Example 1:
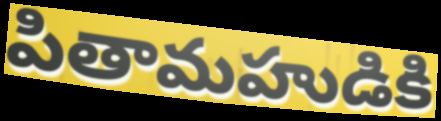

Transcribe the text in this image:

పితామహుడికి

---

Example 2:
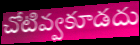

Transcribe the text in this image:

చోటివ్వకూడదు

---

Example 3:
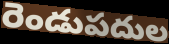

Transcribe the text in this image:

రెండుపదుల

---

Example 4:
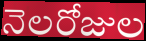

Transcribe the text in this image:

నెలరోజుల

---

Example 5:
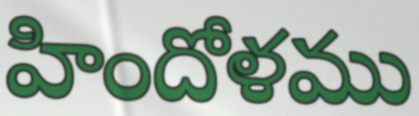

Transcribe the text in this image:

హిందోళము